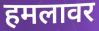
हमलावर